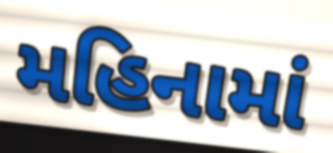
મહિનામાં